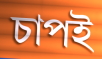
চাপই